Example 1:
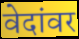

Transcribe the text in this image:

वेदांवर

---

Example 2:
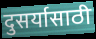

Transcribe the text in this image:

दुसर्यासाठी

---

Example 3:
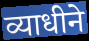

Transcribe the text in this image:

व्याधीने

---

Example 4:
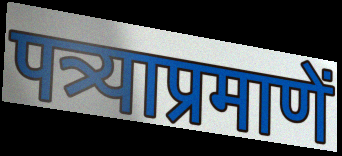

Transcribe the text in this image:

पत्र्याप्रमाणें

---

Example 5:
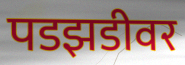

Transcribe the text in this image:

पडझडीवर